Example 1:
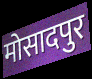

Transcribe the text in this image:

मोसादपुर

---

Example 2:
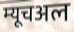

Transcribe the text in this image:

म्यूचअल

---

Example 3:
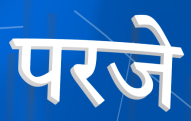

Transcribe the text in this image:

परजे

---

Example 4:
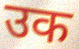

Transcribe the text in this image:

उक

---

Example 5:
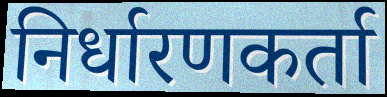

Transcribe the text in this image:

निर्धारणकर्ता